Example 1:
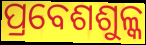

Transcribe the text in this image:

ପ୍ରବେଶଶୁଳ୍କ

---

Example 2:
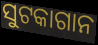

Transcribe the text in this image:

ସୁଟକାଗାନ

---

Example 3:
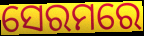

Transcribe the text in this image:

ସେରମରେ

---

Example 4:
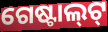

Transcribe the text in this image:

ଗେଷ୍ଟାଲ୍‌ଟ୍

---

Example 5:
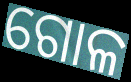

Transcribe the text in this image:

ଗୋଳ